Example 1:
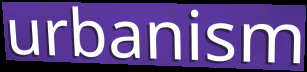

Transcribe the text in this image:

urbanism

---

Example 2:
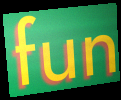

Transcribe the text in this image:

fun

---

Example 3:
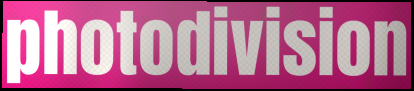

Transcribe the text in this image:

photodivision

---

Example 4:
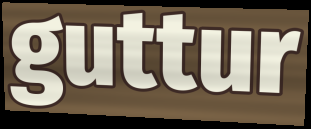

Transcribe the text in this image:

guttur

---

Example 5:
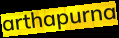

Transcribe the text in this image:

arthapurna